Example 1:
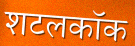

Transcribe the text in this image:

शटलकॉक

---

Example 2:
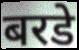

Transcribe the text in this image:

बरडे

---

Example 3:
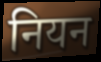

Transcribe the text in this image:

नियन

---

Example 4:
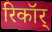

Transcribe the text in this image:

रिकॉर्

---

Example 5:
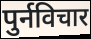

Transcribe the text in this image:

पुर्नविचार